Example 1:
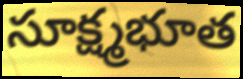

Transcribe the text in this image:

సూక్ష్మభూత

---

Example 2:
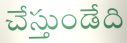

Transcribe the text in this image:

చేస్తుండేది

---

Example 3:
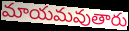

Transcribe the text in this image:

మాయమవుతారు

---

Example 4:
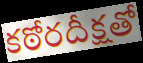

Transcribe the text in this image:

కఠోరదీక్షతో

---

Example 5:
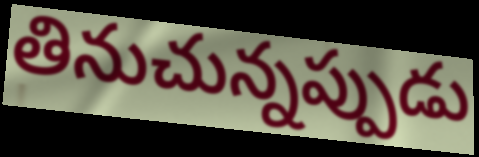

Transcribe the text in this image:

తినుచున్నప్పుడు